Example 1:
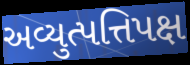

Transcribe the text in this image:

અવ્યુત્પત્તિપક્ષ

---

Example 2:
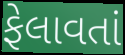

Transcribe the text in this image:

ફેલાવતાં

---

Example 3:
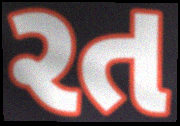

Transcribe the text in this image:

રત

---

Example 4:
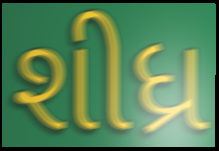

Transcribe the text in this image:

શીધ્ર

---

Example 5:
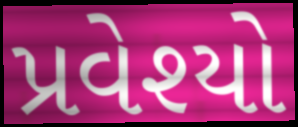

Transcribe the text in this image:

પ્રવેશ્યો